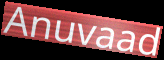
Anuvaad